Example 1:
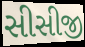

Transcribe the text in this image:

સીસીજી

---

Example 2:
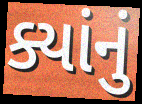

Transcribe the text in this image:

ક્યાંનું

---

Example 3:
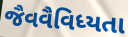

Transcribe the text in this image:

જૈવવૈવિધ્યતા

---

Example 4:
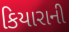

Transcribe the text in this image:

કિયારાની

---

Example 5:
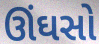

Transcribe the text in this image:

ઊંઘસો